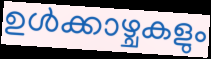
ഉൾക്കാഴ്ചകളും